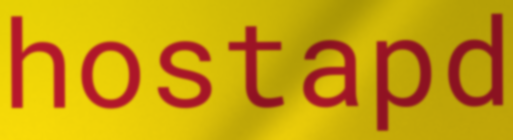
hostapd